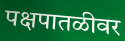
पक्षपातळीवर